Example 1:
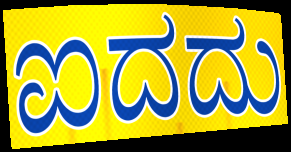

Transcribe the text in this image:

ಐದದು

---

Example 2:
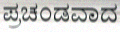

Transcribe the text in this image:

ಪ್ರಚಂಡವಾದ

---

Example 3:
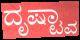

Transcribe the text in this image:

ದೃಷ್ಟ್ವಾ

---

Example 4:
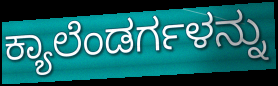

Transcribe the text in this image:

ಕ್ಯಾಲೆಂಡರ್ಗಳನ್ನು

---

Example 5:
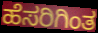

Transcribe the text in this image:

ಹೆಸರಿಗಿಂತ